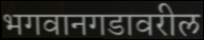
भगवानगडावरील